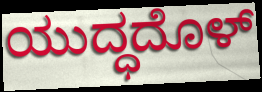
ಯುದ್ಧದೊಳ್